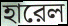
হারেল